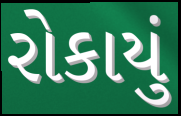
રોકાયું